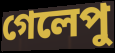
গেলেপু